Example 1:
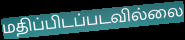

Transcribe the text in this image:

மதிப்பிடப்படவில்லை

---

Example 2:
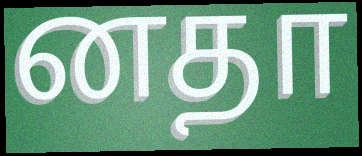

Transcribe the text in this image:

னதா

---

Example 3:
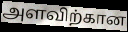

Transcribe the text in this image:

அளவிற்கான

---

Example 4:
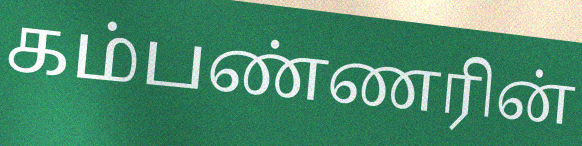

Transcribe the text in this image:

கம்பண்ணரின்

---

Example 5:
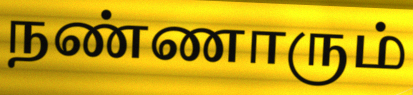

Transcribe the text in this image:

நண்ணாரும்